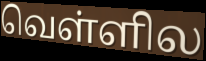
வெள்ளில